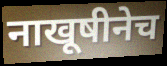
नाखूषीनेच